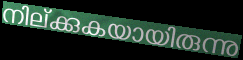
നില്ക്കുകയായിരുന്നു